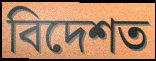
বিদেশত